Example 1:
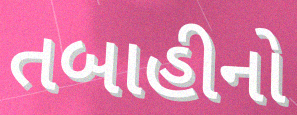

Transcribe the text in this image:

તબાહીનો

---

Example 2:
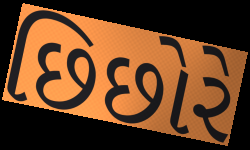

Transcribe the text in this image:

છિછોરે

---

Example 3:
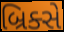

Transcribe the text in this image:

બ્રિક્સે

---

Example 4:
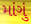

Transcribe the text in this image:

માંગું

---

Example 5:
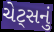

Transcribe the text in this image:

ચેટ્સનું